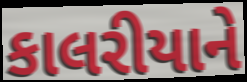
કાલરીયાને